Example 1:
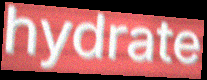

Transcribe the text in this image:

hydrate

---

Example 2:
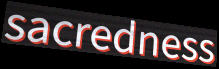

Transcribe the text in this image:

sacredness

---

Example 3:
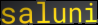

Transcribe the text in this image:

saluni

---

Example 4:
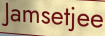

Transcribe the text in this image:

Jamsetjee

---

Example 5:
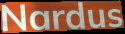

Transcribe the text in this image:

Nardus